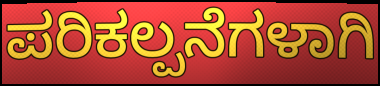
ಪರಿಕಲ್ಪನೆಗಳಾಗಿ